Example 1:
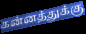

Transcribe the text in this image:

கன்னத்துக்கு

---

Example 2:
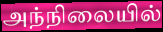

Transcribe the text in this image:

அந்நிலையில்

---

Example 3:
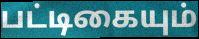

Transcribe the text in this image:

பட்டிகையும்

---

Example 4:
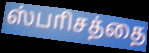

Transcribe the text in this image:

ஸ்பரிசத்தை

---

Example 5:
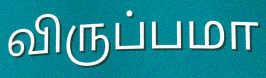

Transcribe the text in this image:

விருப்பமா